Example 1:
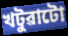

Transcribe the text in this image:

খটুৱাটো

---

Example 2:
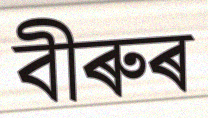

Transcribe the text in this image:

বীৰুৰ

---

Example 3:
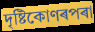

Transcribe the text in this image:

দৃষ্টিকোণৰপৰা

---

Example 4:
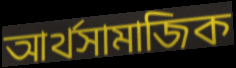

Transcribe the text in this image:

আৰ্থসামাজিক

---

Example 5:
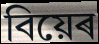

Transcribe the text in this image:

বিয়েৰ